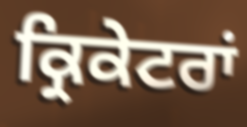
ਕ੍ਰਿਕੇਟਰਾਂ